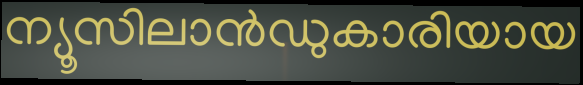
ന്യൂസിലാൻഡുകാരിയായ